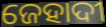
ଜେହାଦୀ